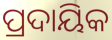
ପ୍ରଦାୟିକ